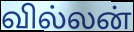
வில்லன்